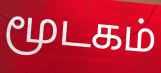
மூடகம்